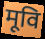
मूवि